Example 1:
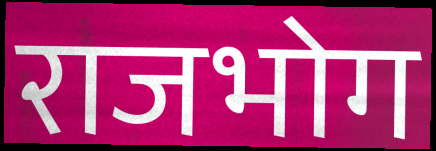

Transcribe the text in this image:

राजभोग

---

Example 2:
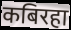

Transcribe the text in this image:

कबिरहा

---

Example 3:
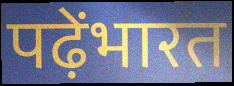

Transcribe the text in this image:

पढ़ेंभारत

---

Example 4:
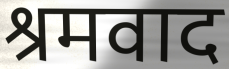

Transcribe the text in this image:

श्रमवाद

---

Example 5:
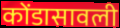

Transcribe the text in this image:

कोंडासावली